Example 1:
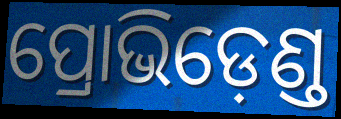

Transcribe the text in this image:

ପ୍ରୋଭିଡ଼େଣ୍ଡ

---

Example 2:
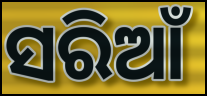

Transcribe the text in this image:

ସରିଆଁ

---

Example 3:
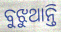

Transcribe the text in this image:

ବୁଝୁଥାନ୍ତି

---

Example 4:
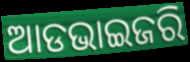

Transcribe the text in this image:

ଆଡଭାଇଜରି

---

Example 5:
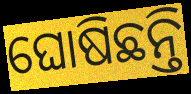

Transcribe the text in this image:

ଘୋଷିଛନ୍ତି